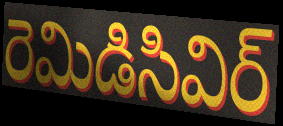
రెమిడిసివిర్